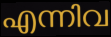
എന്നിവ